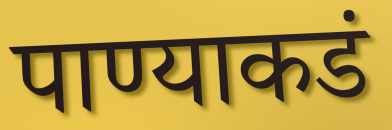
पाण्याकडं